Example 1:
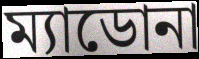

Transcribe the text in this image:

ম্যাডোনা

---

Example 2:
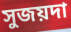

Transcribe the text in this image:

সুজয়দা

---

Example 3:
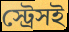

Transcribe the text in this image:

স্ট্রেসই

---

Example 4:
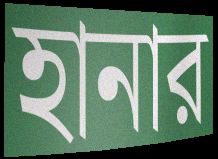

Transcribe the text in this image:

হানার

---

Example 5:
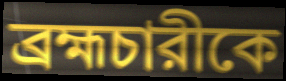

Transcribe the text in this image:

ব্রহ্মচারীকে